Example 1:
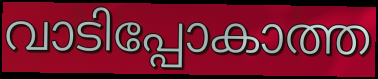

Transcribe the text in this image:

വാടിപ്പോകാത്ത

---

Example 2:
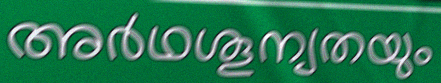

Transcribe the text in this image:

അർഥശൂന്യതയും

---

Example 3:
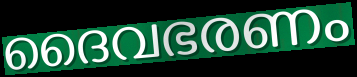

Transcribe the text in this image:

ദൈവഭരണം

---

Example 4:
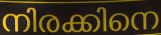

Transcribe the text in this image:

നിരക്കിനെ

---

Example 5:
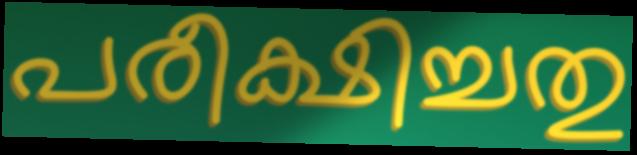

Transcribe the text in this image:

പരീക്ഷിച്ചതു